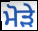
ਮੋੜੇ